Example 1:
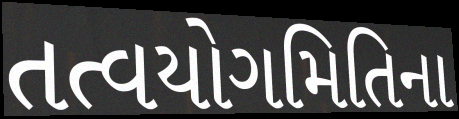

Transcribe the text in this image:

તત્વયોગમિતિના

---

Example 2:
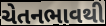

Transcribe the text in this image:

ચેતનભાવથી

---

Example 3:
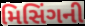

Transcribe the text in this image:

મિસિંગની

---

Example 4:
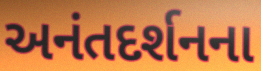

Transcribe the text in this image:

અનંતદર્શનના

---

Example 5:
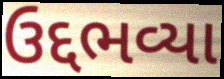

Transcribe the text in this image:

ઉદ્દભવ્યા